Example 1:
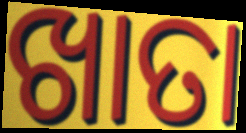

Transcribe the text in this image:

ଖାତା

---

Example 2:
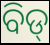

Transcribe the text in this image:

ବିଡ୍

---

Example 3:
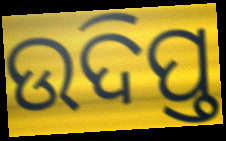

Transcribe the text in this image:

ଉଦିପ୍ତ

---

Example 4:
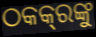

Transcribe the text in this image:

ଠକକ୍‌ରଙ୍କୁ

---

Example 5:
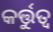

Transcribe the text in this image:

କର୍ତ୍ତୁତ୍ୱ